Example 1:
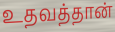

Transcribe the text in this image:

உதவத்தான்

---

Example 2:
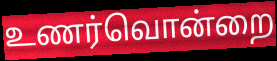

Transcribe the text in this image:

உணர்வொன்றை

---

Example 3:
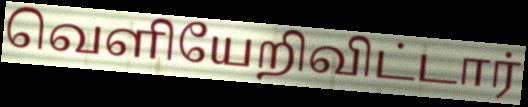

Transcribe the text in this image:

வெளியேறிவிட்டார்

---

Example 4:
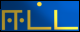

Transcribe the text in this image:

ஈட்ட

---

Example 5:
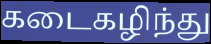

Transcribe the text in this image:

கடைகழிந்து